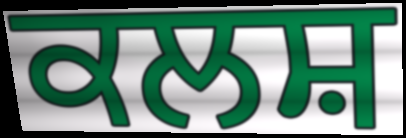
ਕਲਸ਼